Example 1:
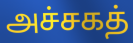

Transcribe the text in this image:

அச்சகத்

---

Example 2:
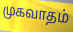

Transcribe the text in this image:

முகவாதம்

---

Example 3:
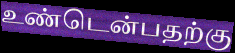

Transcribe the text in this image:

உண்டென்பதற்கு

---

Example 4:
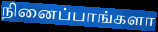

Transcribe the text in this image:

நினைப்பாங்களா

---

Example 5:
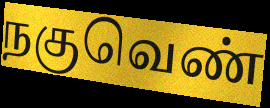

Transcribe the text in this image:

நகுவெண்